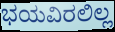
ಭಯವಿರಲಿಲ್ಲ